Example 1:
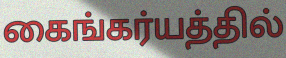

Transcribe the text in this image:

கைங்கர்யத்தில்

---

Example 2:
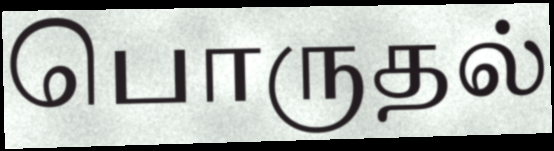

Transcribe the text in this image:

பொருதல்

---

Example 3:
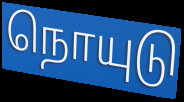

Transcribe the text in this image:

நொயுடு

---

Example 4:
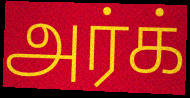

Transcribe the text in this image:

அர்க்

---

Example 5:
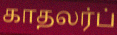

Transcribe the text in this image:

காதலர்ப்